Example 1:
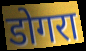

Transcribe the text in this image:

डोगरा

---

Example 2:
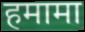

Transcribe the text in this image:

हमामा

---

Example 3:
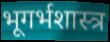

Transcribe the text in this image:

भूगर्भशास्त्र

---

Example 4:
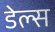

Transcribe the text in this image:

डेल्स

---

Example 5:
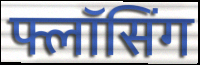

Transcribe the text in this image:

फ्लॉसिंग